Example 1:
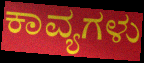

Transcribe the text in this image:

ಕಾವ್ಯಗಳು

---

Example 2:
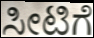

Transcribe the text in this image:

ಸೀಟಿಗೆ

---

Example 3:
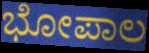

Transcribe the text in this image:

ಭೋಪಾಲ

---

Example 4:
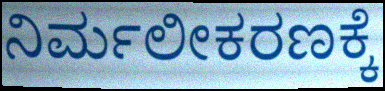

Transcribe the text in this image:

ನಿರ್ಮಲೀಕರಣಕ್ಕೆ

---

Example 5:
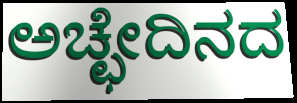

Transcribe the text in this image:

ಅಚ್ಛೇದಿನದ